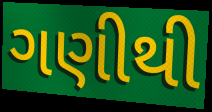
ગણીથી